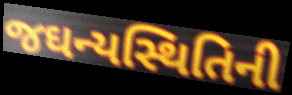
જઘન્યસ્થિતિની